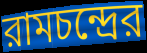
রামচন্দ্রের